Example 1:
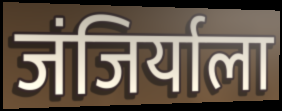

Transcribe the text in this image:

जंजिर्याला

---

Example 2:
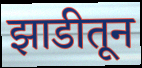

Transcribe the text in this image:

झाडीतून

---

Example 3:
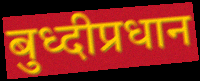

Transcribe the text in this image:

बुध्दीप्रधान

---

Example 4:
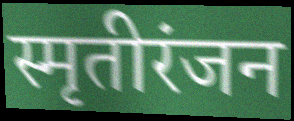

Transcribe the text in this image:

स्मृतीरंजन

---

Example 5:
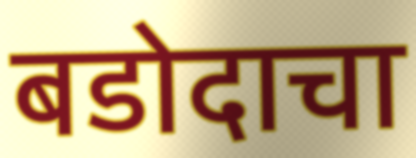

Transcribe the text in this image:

बडोदाचा